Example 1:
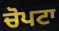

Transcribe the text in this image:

ਚੋਪਟਾ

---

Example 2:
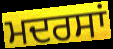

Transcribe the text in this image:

ਮਦਰਸਾਂ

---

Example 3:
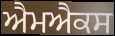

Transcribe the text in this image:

ਐਮਐਕਸ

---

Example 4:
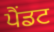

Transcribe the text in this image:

ਪੈਂਡਟ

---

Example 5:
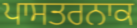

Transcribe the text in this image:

ਪਾਸਤਰਨਾਕ